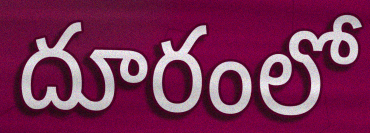
దూరంలో